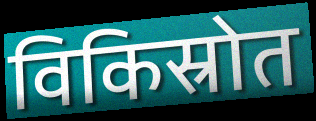
विकिस्रोत